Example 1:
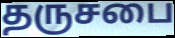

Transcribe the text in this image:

தருசபை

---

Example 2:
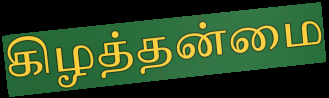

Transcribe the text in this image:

கிழத்தன்மை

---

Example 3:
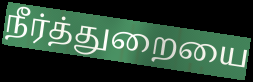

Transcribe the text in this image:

நீர்த்துறையை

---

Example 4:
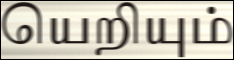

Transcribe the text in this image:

யெறியும்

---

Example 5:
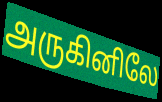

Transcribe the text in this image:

அருகினிலே